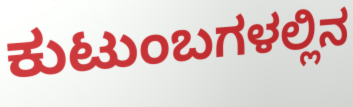
ಕುಟುಂಬಗಳಲ್ಲಿನ